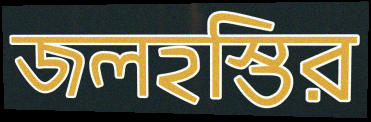
জলহস্তির